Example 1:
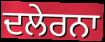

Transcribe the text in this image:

ਦਲੇਰਨਾ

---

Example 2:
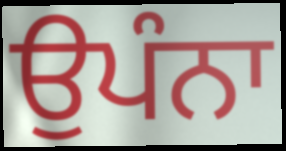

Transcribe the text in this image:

ਉਪੰਨਾ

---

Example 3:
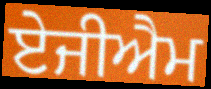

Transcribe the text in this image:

ਏਜੀਐਮ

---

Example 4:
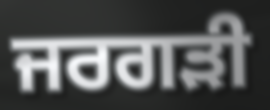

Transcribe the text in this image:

ਜਰਗੜੀ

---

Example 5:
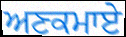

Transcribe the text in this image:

ਅਣਕਮਾਏ